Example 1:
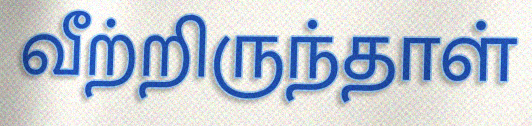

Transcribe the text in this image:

வீற்றிருந்தாள்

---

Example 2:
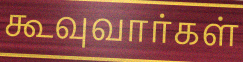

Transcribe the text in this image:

கூவுவார்கள்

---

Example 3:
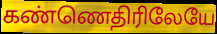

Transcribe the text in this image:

கண்ணெதிரிலேயே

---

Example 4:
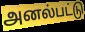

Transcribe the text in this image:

அனல்பட்டு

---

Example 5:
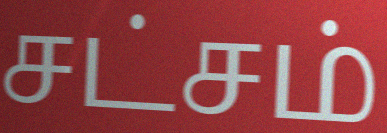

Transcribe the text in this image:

சட்சம்